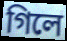
গিলে